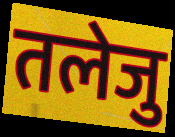
तलेजु